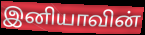
இனியாவின்